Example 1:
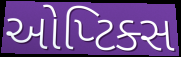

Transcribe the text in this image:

ઓપ્ટિક્સ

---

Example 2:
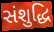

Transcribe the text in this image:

સંશુદ્ધિ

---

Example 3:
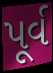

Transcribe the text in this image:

પૂર્વ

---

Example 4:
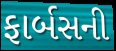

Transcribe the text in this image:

ફાર્બસની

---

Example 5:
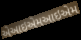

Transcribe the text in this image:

એઆઇએમઆઇએમ